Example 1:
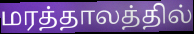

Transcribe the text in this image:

மரத்தாலத்தில்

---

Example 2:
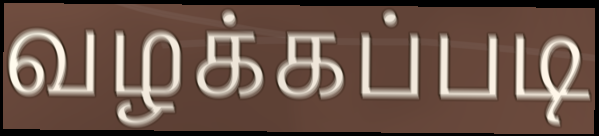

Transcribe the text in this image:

வழக்கப்படி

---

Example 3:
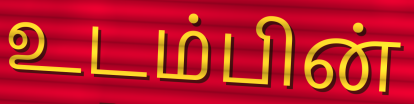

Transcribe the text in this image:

உடம்பின்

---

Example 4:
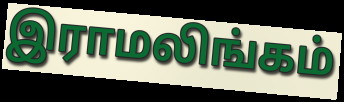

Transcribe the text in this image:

இராமலிங்கம்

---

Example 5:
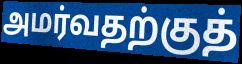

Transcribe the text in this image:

அமர்வதற்குத்